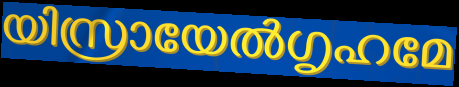
യിസ്രായേൽഗൃഹമേ